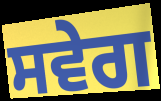
ਸਵੇਗ